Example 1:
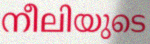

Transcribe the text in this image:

നീലിയുടെ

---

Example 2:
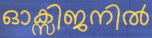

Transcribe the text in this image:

ഓക്സിജനിൽ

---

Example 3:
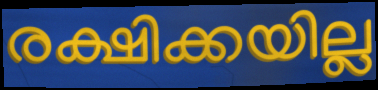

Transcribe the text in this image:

രക്ഷിക്കയില്ല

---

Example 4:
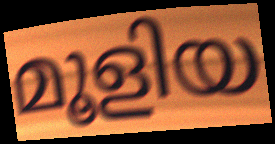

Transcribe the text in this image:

മൂളിയ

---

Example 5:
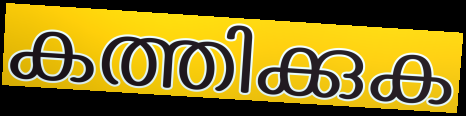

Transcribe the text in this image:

കത്തിക്കുക